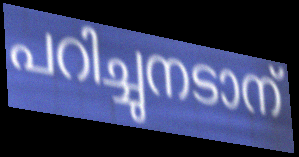
പറിച്ചുനടാന്